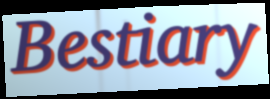
Bestiary